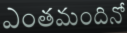
ఎంతమందినో